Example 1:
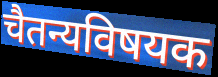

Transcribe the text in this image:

चैतन्यविषयक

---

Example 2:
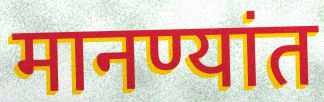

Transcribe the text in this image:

मानण्यांत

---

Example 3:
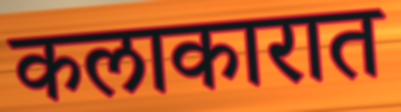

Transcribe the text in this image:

कलाकारात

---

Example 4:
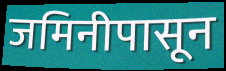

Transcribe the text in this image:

जमिनीपासून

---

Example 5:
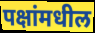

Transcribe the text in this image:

पक्षांमधील